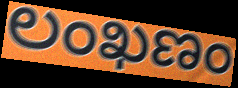
లంఖణం